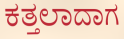
ಕತ್ತಲಾದಾಗ